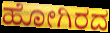
ಹೋಗಿರದ